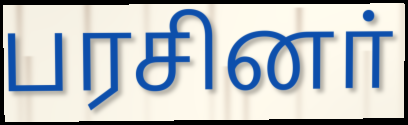
பரசினர்